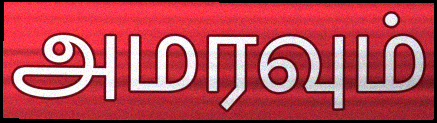
அமரவும்